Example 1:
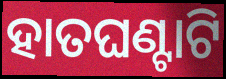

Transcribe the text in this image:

ହାତଘଣ୍ଟାଟି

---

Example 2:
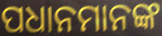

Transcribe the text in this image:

ପଧାନମାନଙ୍କ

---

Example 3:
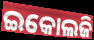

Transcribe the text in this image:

ଇକୋଲଜି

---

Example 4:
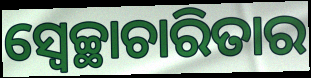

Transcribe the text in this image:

ସ୍ୱେଚ୍ଛାଚାରିତାର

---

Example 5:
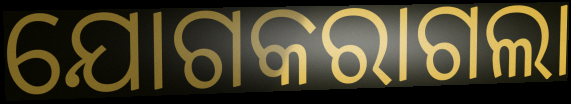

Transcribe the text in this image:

ଯୋଗକରାଗଲା